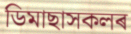
ডিমাছাসকলৰ